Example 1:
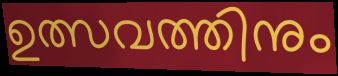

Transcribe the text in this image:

ഉത്സവത്തിനും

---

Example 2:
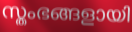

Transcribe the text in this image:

സ്തംഭങ്ങളായി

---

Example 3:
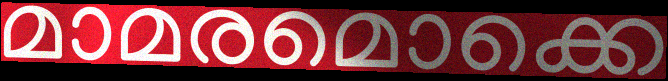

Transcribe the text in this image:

മാമരമൊക്കെ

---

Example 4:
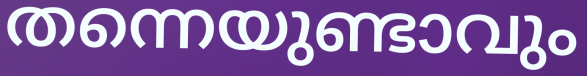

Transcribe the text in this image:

തന്നെയുണ്ടാവും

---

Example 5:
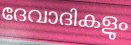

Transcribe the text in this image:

ദേവാദികളും